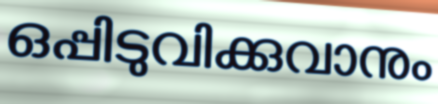
ഒപ്പിടുവിക്കുവാനും